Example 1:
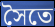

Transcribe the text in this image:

সৈতে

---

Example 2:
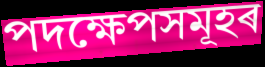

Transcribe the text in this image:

পদক্ষেপসমূহৰ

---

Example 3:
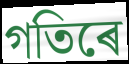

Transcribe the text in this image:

গতিৰে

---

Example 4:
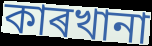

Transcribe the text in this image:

কাৰখানা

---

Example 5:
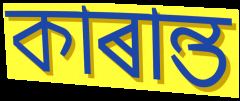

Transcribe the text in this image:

কাৰান্ত